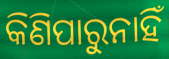
କିଣିପାରୁନାହିଁ